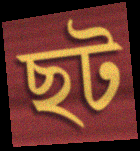
ছট